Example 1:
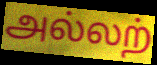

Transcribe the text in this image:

அல்லற்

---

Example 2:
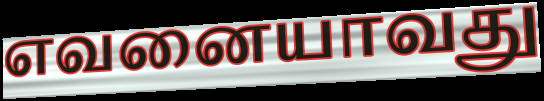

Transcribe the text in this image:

எவனையாவது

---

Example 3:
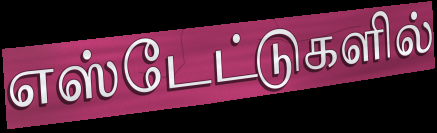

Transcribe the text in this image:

எஸ்டேட்டுகளில்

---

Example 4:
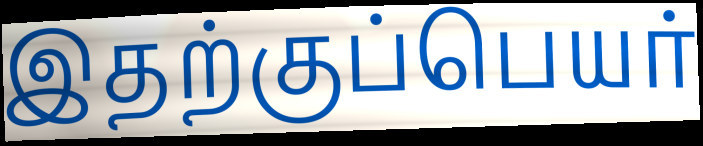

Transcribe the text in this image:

இதற்குப்பெயர்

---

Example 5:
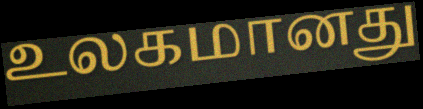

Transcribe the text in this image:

உலகமானது